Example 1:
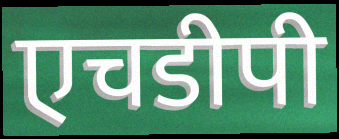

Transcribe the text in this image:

एचडीपी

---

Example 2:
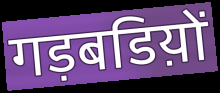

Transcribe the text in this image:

गड़बडिय़ों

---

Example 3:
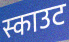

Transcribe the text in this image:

स्काउट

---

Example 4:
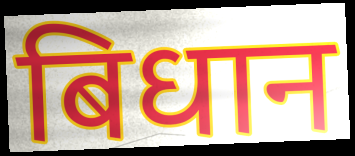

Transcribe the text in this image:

बिधान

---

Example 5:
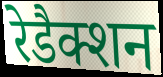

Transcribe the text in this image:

रेडैक्शन